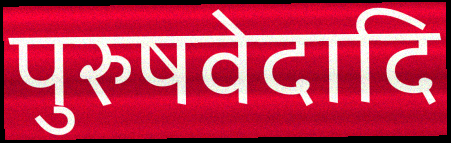
पुरुषवेदादि